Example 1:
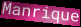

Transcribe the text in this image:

Manrique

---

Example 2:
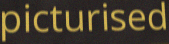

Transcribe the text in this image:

picturised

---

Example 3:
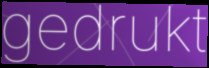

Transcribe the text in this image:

gedrukt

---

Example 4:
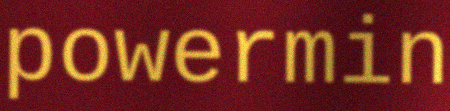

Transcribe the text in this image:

powermin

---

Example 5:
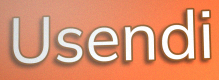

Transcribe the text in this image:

Usendi